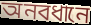
অনবধানে